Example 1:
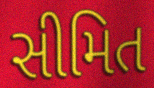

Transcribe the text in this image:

સીમિત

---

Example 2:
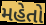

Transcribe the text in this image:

મહેતો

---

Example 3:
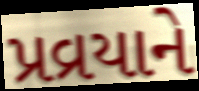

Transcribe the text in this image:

પ્રવ્રયાને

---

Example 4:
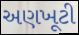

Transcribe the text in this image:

અણખૂટી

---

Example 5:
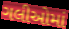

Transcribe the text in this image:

ગલીઓમાં